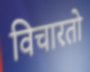
विचारतो